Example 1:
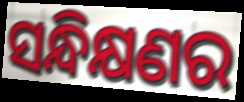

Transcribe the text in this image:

ସନ୍ଧିକ୍ଷଣର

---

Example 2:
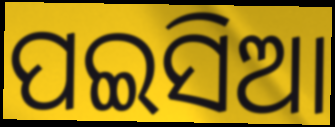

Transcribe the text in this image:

ପଇସିଆ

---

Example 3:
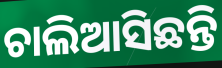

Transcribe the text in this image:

ଚାଲିଆସିଛନ୍ତି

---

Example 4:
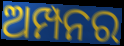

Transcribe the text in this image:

ଅମ୍ପନର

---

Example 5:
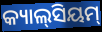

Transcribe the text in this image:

କ୍ୟାଲ୍‌ସିୟମ୍